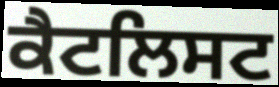
ਕੈਟਲਿਸਟ